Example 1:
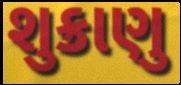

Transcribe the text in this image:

શુક્રાણુ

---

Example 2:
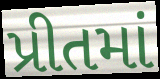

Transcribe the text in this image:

પ્રીતમાં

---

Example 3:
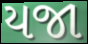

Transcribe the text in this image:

યજા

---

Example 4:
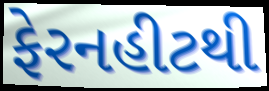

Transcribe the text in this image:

ફેરનહીટથી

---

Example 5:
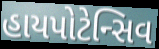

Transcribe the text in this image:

હાયપોટેન્સિવ